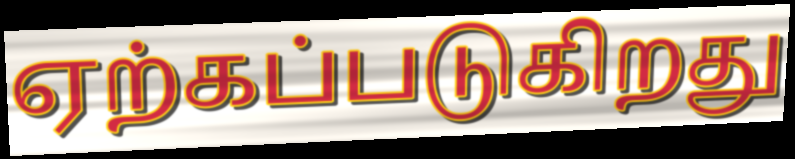
ஏற்கப்படுகிறது